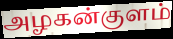
அழகன்குளம்